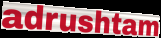
adrushtam